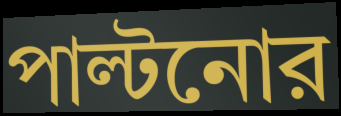
পাল্টনোর